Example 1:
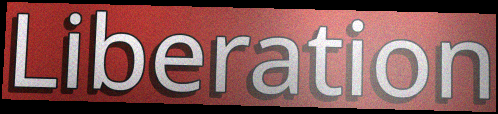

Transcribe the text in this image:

Liberation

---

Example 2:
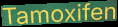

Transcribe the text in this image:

Tamoxifen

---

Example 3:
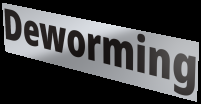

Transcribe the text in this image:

Deworming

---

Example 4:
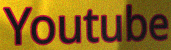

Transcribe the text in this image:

Youtube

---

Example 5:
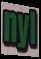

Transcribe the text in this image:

nyl